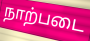
நாற்படை